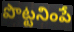
పొట్టనింపే